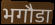
भगौडा